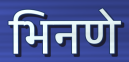
भिनणे